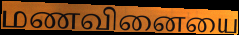
மணவினையை